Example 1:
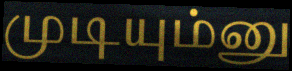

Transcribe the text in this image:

முடியும்னு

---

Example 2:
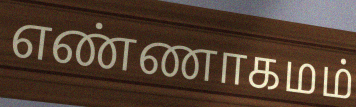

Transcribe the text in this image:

எண்ணாகமம்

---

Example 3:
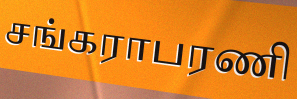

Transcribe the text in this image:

சங்கராபரணி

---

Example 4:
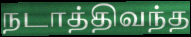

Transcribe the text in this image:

நடாத்திவந்த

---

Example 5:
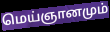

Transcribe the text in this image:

மெய்ஞானமும்